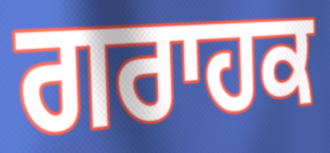
ਗਰਾਹਕ